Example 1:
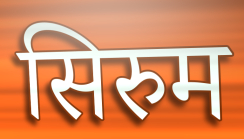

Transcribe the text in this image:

सिरुम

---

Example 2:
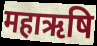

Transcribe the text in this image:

महाऋषि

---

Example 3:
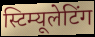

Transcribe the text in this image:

स्टिम्यूलेटिंग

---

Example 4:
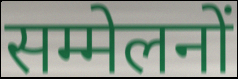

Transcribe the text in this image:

सम्मेलनों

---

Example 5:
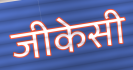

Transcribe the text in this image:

जीकेसी